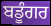
ਬਡੂੰਗਰ